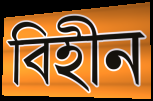
বিহীন